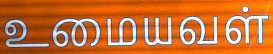
உமையவள்